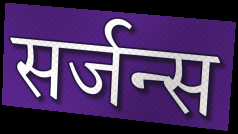
सर्जन्स